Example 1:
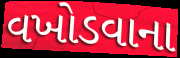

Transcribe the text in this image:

વખોડવાના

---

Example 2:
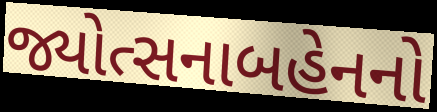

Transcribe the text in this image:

જ્યોત્સનાબહેનનો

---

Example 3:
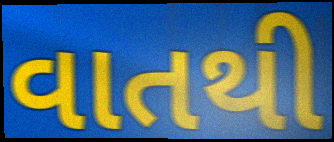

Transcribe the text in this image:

વાતથી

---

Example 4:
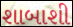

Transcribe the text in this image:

શાબાશી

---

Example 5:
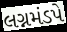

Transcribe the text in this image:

લગ્નમંડપે